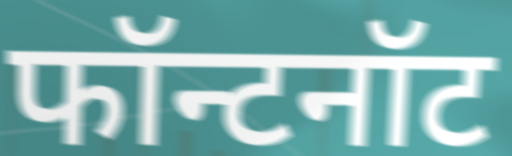
फॉन्टनॉट